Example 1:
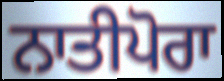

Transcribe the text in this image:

ਨਾਤੀਪੋਰਾ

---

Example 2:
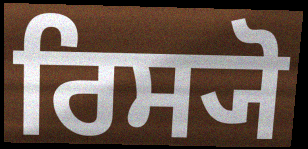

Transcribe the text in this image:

ਰਿਸ੍ਯੋ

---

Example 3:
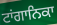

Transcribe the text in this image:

ਟਾਂਗਾਨਿਕਾ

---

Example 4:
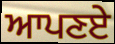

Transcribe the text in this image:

ਆਪਣਏ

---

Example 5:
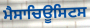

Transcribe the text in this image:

ਮੈਸਾਚਿਊਸਿਟਸ